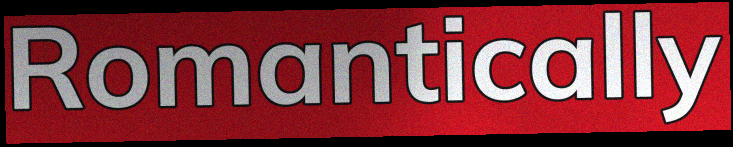
Romantically